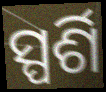
ସ୍ପର୍ଶି